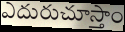
ఎదురుచూస్తాం